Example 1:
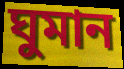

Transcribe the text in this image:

ঘুমান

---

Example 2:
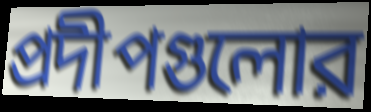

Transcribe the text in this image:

প্রদীপগুলোর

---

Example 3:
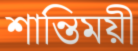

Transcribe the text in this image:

শান্তিময়ী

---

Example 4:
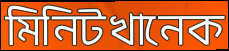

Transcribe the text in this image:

মিনিটখানেক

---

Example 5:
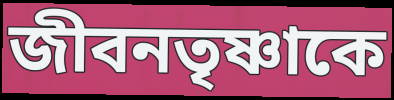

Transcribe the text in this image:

জীবনতৃষ্ণাকে